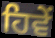
ਹਿਵੇਂ